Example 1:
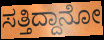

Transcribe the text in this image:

ಸತ್ತಿದ್ದಾನೋ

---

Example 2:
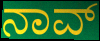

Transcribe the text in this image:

ನಾವ್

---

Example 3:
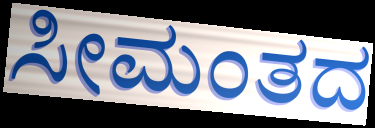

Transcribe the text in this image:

ಸೀಮಂತದ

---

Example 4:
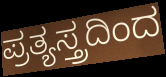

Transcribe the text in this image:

ಪ್ರತ್ಯಸ್ತ್ರದಿಂದ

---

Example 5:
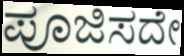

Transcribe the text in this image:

ಪೂಜಿಸದೇ